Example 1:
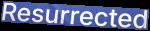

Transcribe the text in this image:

Resurrected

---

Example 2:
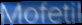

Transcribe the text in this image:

Mofetil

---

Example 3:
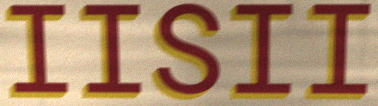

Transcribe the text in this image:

IISII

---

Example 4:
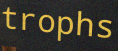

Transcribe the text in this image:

trophs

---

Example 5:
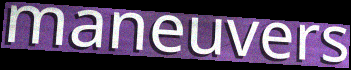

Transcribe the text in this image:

maneuvers